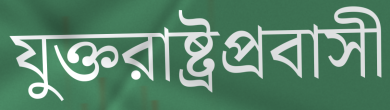
যুক্তরাষ্ট্রপ্রবাসী